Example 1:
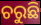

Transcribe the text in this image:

ଚରୁଛି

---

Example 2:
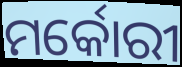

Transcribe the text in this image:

ମର୍କୋରୀ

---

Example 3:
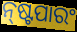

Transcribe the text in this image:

ନ୍‌ଷ୍ଟପାରଂ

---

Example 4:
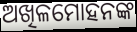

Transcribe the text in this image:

ଅଖିଳମୋହନଙ୍କ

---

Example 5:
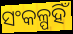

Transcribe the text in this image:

ସଂକଳ୍ପହିଁ